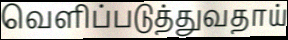
வெளிப்படுத்துவதாய்